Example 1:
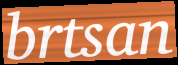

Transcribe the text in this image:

brtsan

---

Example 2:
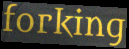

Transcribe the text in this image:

forking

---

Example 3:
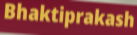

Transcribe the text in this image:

Bhaktiprakash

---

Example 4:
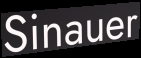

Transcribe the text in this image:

Sinauer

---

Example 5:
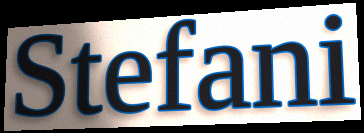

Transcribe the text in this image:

Stefani